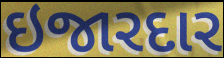
ઇજારદાર